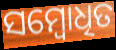
ସମ୍ବୋଧିତ